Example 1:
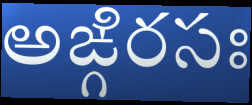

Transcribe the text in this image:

అఙ్గిరసః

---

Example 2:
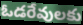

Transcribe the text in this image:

ఓడరేవులకు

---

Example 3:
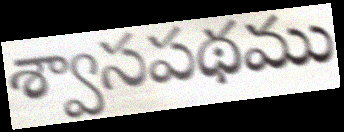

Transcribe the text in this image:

శ్వాసపథము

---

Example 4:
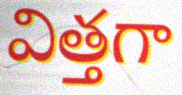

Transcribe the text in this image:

విత్తగా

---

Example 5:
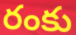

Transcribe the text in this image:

రంకు